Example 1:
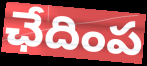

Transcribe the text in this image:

ఛేదింప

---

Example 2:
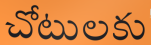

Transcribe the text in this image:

చోటులకు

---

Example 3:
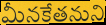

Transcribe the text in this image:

మీనకేతనుని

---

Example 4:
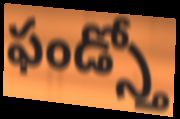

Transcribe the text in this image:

ఫండ్స్తో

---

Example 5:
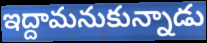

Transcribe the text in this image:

ఇద్దామనుకున్నాడు